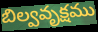
బిల్వవృక్షము